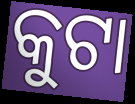
କୁଟା